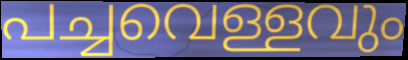
പച്ചവെള്ളവും